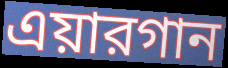
এয়ারগান